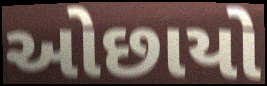
ઓછાયો